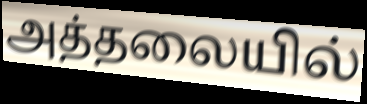
அத்தலையில்